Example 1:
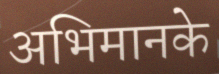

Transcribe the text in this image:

अभिमानके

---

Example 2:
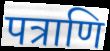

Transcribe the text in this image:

पत्राणि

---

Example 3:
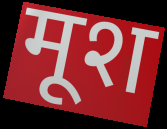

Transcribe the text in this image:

मूश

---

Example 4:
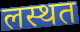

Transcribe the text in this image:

लस्थत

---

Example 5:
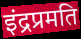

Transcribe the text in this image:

इंद्रप्रमति